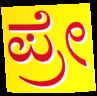
ಪ್ರೇ